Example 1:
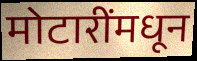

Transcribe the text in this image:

मोटारींमधून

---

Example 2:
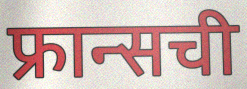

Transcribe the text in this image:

फ्रान्सची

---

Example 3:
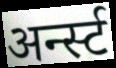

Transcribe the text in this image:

अर्न्स्ट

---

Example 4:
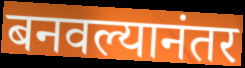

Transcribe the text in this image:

बनवल्यानंतर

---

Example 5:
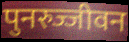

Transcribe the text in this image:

पुनरुज्‍जीवन